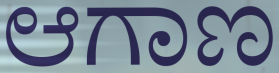
ಆಗಾಣ